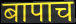
बापाच